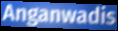
Anganwadis